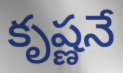
కృష్ణనే